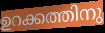
ഉറക്കത്തിനു